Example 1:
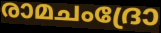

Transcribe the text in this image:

രാമചംദ്രോ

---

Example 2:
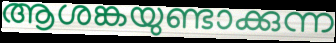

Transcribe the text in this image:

ആശങ്കയുണ്ടാക്കുന്ന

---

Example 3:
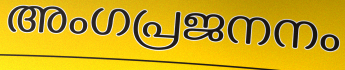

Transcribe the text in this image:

അംഗപ്രജനനം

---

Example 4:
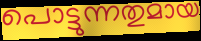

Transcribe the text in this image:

പൊട്ടുന്നതുമായ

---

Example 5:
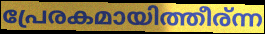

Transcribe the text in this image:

പ്രേരകമായിത്തീര്ന്ന